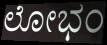
ಲೋಭಂ